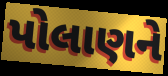
પોલાણને